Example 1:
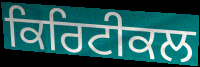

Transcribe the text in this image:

ਕਿਰਿਟੀਕਲ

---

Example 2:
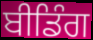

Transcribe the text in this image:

ਬੀਡਿੰਗ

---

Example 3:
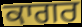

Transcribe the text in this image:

ਕਾਗਰ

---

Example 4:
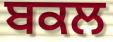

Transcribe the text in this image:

ਬਕਲ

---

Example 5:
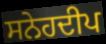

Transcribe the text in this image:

ਸਨੇਹਦੀਪ